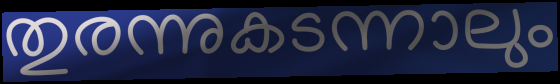
തുരന്നുകടന്നാലും